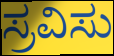
ಸ್ರವಿಸು